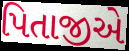
પિતાજીએ